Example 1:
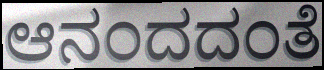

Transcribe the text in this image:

ಆನಂದದಂತೆ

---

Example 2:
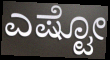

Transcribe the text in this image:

ಎಷ್ಟೋ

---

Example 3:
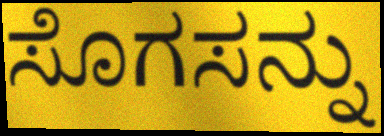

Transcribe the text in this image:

ಸೊಗಸನ್ನು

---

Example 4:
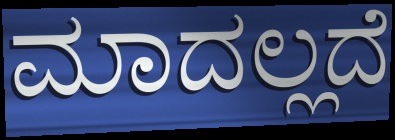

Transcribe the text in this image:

ಮಾದಲ್ಲದೆ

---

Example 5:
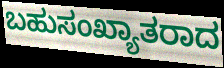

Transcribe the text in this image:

ಬಹುಸಂಖ್ಯಾತರಾದ